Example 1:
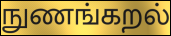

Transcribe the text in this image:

நுணங்கறல்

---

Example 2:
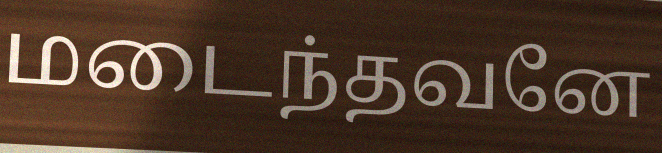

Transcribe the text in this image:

மடைந்தவனே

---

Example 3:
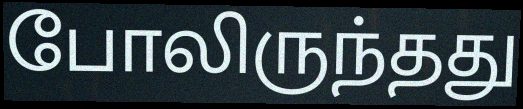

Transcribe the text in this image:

போலிருந்தது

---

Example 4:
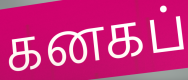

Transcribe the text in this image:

கனகப்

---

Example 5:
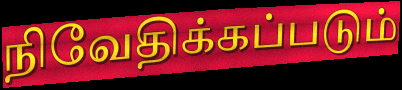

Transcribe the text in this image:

நிவேதிக்கப்படும்